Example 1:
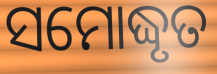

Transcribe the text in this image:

ସମୋଦ୍ଧୃତ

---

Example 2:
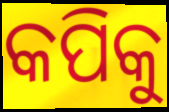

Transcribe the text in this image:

କପିକୁ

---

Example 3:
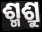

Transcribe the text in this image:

ଶ୍ମଶ୍ରୁ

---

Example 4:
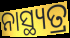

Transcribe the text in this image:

ନାସ୍ଥ୍ୟତ୍ର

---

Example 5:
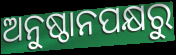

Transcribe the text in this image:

ଅନୁଷ୍ଠାନପକ୍ଷରୁ